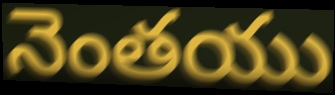
నెంతయు